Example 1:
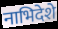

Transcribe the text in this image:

नाभिदेशे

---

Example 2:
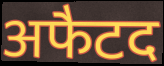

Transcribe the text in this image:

अफैटद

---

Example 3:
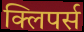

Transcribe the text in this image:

क्लिपर्स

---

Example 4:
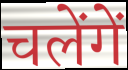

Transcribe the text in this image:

चलेंगें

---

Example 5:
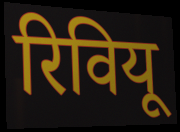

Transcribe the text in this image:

रिवियू